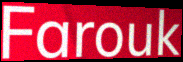
Farouk